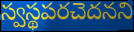
స్వస్థపరచెదనని